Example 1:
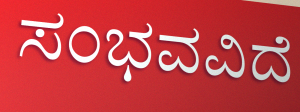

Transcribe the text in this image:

ಸಂಭವವಿದೆ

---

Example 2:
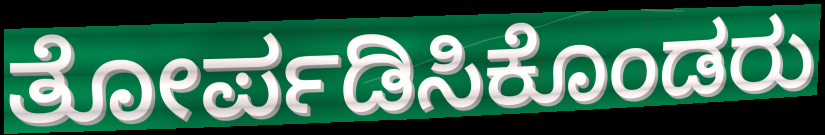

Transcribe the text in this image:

ತೋರ್ಪಡಿಸಿಕೊಂಡರು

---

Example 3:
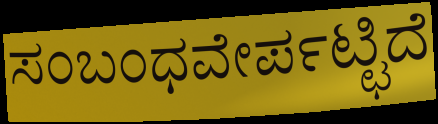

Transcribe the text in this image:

ಸಂಬಂಧವೇರ್ಪಟ್ಟಿದೆ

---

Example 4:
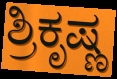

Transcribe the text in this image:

ಶ್ರಿಕೃಷ್ಣ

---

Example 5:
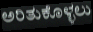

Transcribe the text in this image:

ಅರಿತುಕೊಳ್ಳಲು